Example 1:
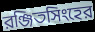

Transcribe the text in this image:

রঞ্জিতসিংহের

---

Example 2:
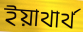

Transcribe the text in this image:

ইয়াথার্থ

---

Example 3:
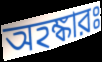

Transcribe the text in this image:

অহঙ্কারঃ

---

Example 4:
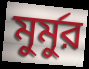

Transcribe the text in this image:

মুর্মুর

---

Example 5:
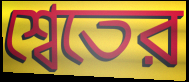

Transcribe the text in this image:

শ্বেতের